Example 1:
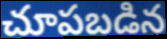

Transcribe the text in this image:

చూపబడిన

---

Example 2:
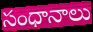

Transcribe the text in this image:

సంధానాలు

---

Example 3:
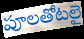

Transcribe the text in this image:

పూలతోటలై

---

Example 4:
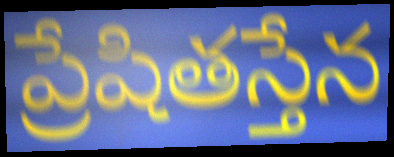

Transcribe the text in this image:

ప్రేషితస్తేన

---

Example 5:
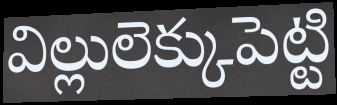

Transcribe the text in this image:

విల్లులెక్కుపెట్టి